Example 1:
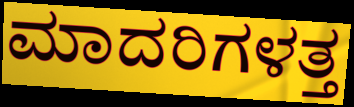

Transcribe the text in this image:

ಮಾದರಿಗಳತ್ತ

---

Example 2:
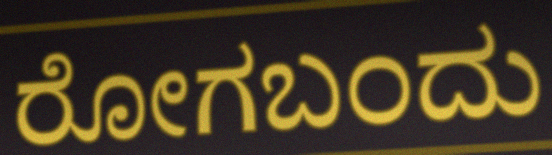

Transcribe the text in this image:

ರೋಗಬಂದು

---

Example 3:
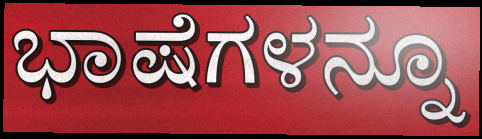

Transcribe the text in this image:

ಭಾಷೆಗಳನ್ನೂ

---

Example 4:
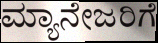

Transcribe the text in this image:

ಮ್ಯಾನೇಜರಿಗೆ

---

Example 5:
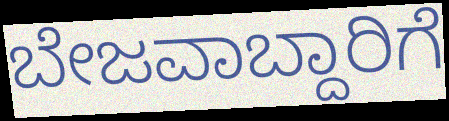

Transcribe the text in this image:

ಬೇಜವಾಬ್ದಾರಿಗೆ